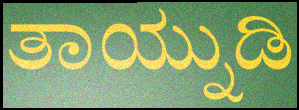
ತಾಯ್ನುಡಿ